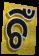
ଚିଁ